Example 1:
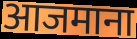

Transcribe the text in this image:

आजमाना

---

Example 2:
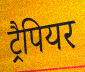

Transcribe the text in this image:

ट्रैपियर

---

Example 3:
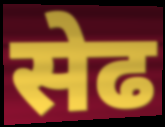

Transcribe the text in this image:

सेढ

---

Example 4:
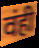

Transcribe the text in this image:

वंही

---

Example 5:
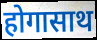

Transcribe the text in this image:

होगासाथ